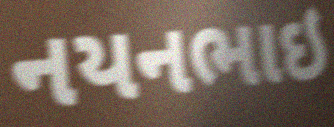
નયનભાઇ